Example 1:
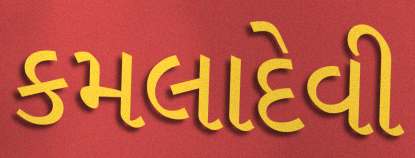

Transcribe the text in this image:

કમલાદેવી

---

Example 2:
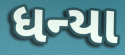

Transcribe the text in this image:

ધન્યા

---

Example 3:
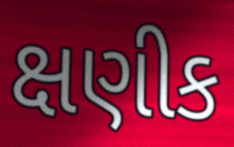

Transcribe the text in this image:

ક્ષણીક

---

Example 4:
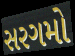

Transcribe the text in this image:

સરગમો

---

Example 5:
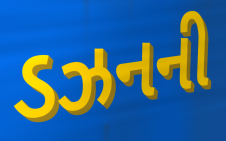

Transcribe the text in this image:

ડઝનની